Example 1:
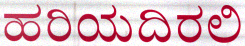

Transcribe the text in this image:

ಹರಿಯದಿರಲಿ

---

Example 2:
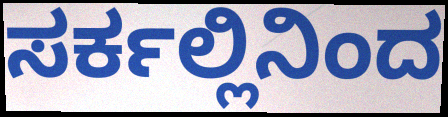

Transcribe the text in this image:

ಸರ್ಕಲ್ಲಿನಿಂದ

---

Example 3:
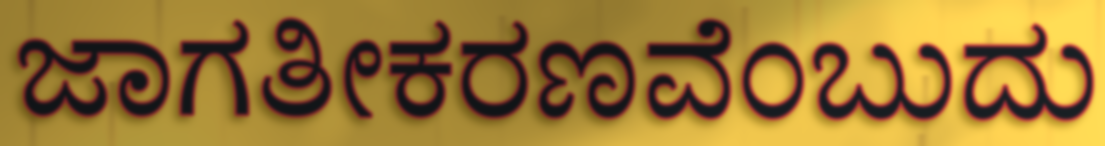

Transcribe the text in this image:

ಜಾಗತೀಕರಣವೆಂಬುದು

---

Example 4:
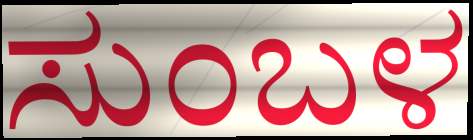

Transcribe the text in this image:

ಸುಂಬಳ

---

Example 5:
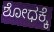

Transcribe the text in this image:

ಶೋಧಕ್ಕೆ